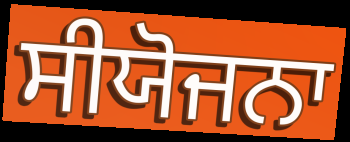
ਸੀਯੋਜਨਾ